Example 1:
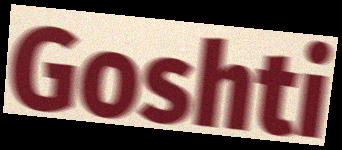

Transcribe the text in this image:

Goshti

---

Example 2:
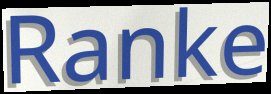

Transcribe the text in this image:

Ranke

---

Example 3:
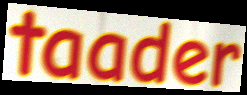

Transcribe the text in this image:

taader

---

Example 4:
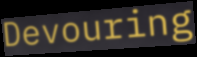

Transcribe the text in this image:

Devouring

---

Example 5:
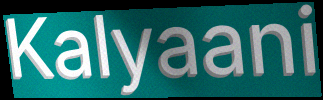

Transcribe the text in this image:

Kalyaani